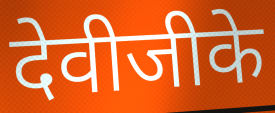
देवीजीके